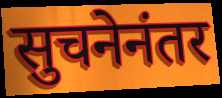
सुचनेनंतर